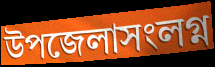
উপজেলাসংলগ্ন